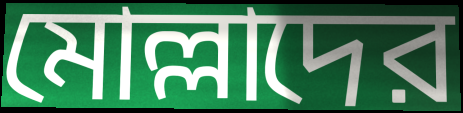
মোল্লাদের